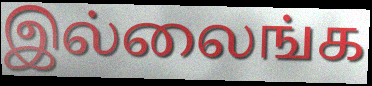
இல்லைங்க